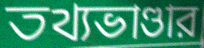
তথ্যভাণ্ডার